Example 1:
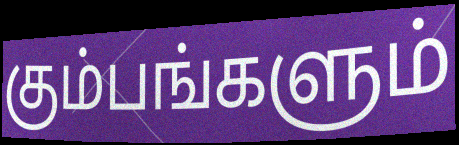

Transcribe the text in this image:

கும்பங்களும்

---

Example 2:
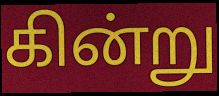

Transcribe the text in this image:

கின்று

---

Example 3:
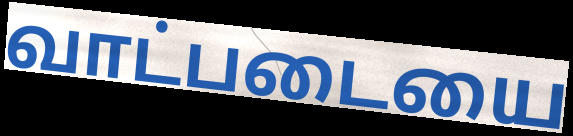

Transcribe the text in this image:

வாட்படையை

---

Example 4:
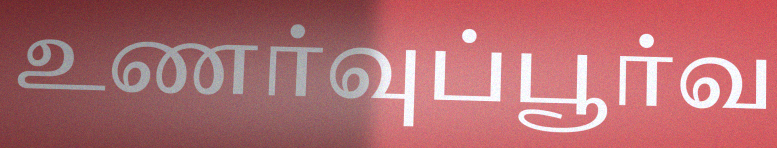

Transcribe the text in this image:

உணர்வுப்பூர்வ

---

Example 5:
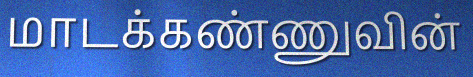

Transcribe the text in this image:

மாடக்கண்ணுவின்